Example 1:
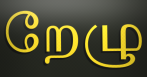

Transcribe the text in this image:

றேழு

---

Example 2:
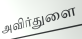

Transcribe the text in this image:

அவிர்துளை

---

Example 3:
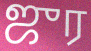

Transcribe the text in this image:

ஜுர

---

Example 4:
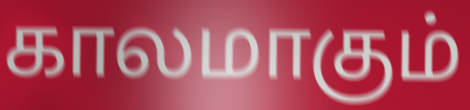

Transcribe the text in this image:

காலமாகும்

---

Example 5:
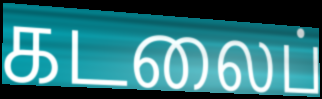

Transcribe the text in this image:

கடலைப்